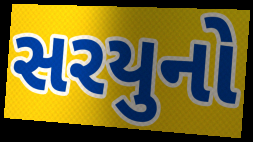
સરયુનો